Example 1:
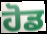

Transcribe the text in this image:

ਹੋਡ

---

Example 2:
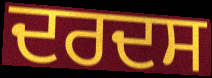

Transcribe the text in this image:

ਦਰਦਸ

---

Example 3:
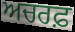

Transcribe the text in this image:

ਅਚਰਫ਼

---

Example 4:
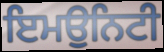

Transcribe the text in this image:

ਇਮਉਨਿਟੀ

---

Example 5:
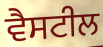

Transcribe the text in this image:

ਵੈਸਟੀਲ